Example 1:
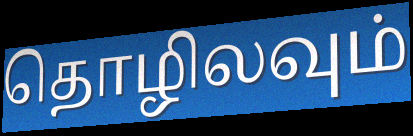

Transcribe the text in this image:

தொழிலவும்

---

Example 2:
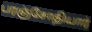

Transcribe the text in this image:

பரஞ்சோதியார்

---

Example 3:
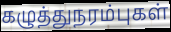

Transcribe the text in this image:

கழுத்துநரம்புகள்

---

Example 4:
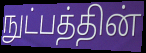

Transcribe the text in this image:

நுட்பத்தின்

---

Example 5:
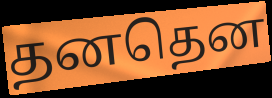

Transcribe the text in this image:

தனதென